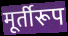
मूर्तीरूप